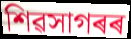
শিৱসাগৰৰ